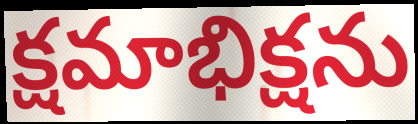
క్షమాభిక్షను